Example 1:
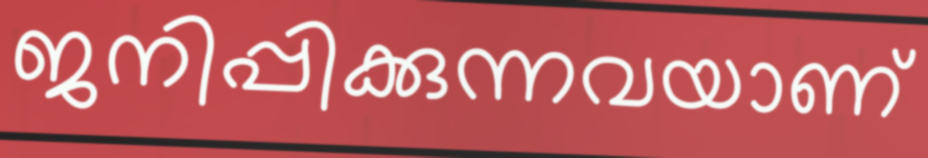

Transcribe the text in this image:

ജനിപ്പിക്കുന്നവയാണ്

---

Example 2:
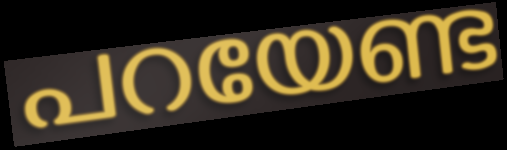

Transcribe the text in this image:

പറയേണ്ട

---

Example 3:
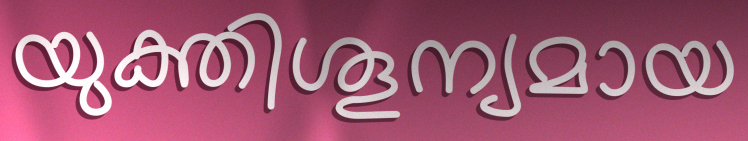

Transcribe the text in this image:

യുക്തിശൂന്യമായ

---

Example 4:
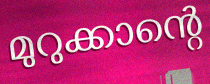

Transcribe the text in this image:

മുറുക്കാന്റെ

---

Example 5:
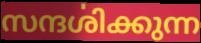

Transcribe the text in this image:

സന്ദൎശിക്കുന്ന